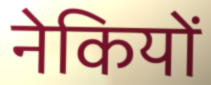
नेकियों